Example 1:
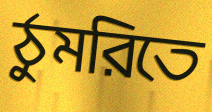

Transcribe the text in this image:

ঠুমরিতে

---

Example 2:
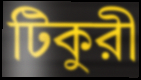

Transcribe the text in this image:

টিকুরী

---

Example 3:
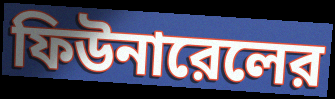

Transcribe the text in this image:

ফিউনারেলের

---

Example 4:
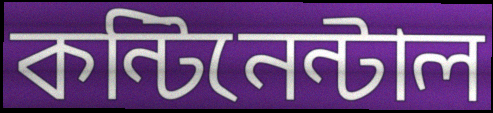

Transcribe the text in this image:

কন্টিনেন্টাল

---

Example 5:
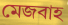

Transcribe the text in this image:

মেজবাহ